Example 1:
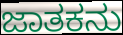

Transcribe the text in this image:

ಜಾತಕನು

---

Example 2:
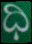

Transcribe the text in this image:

ಧಿ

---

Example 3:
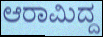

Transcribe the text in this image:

ಆರಾಮಿದ್ದ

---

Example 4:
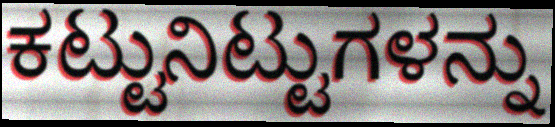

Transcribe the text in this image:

ಕಟ್ಟುನಿಟ್ಟುಗಳನ್ನು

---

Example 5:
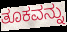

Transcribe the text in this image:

ತೂಕವನ್ನು